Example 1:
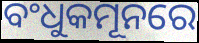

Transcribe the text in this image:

ବଂଧୁକମୂନରେ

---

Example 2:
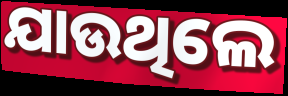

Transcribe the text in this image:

ଯାଉଥିଲେ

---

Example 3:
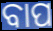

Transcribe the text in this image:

ବାପ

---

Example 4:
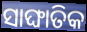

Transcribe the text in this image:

ସାଙ୍ଘାତିକ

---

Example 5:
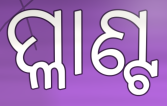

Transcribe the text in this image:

ପ୍ଳାଣ୍ଟ